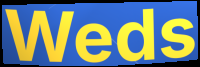
Weds